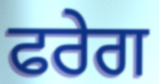
ਫਰੇਗ